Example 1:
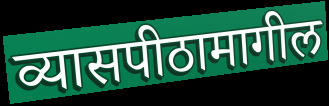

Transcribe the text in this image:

व्यासपीठामागील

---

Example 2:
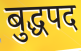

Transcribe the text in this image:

बुद्धपद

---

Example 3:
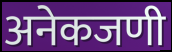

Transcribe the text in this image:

अनेकजणी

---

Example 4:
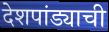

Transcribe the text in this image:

देशपांड्याची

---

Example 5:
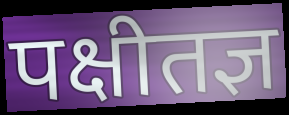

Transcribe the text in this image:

पक्षीतज्ञ